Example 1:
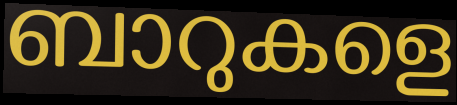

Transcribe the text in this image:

ബാറുകളെ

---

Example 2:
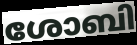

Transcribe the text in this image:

ശോബി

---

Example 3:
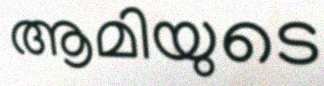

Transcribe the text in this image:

ആമിയുടെ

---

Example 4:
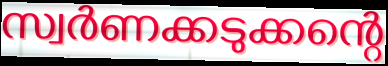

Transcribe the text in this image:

സ്വർണക്കടുക്കന്റെ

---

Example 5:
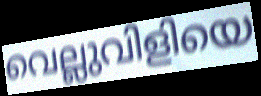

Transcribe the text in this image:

വെല്ലുവിളിയെ